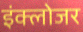
इंक्लोजर